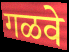
गळवे